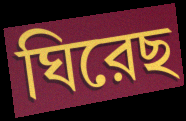
ঘিরেছ